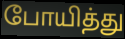
போயித்து